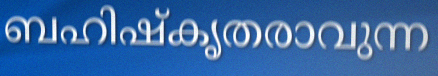
ബഹിഷ്കൃതരാവുന്ന